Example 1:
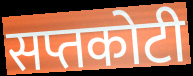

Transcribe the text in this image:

सप्तकोटी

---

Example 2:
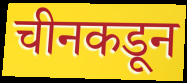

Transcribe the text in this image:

चीनकडून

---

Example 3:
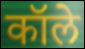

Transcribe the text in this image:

कॉले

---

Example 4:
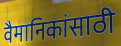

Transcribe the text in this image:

वैमानिकांसाठी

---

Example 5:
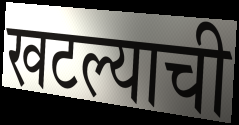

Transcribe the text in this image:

खटल्याची